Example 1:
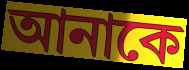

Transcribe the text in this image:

আনাকে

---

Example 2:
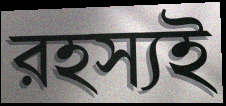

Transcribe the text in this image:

রহস্যই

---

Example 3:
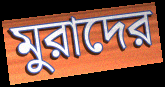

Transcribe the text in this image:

মুরাদের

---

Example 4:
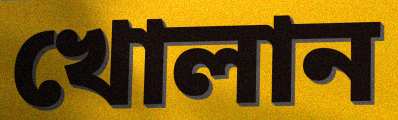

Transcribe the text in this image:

খোলান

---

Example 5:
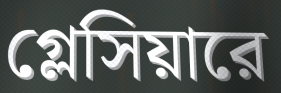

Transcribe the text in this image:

গ্লেসিয়ারে